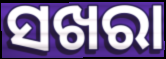
ସଖରା